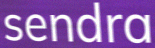
sendra